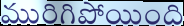
మురిగిపోయింది